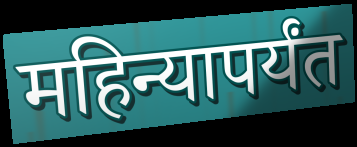
महिन्यापर्यंत